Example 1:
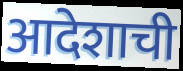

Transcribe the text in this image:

आदेशाची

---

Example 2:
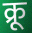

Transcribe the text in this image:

क्रू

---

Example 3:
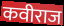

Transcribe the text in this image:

कवीराज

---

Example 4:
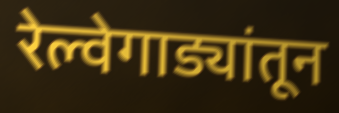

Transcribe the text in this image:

रेल्वेगाड्यांतून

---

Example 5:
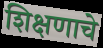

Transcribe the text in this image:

शिक्षणाचे